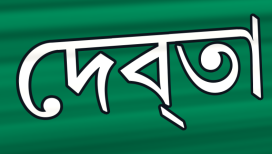
দেব্তা